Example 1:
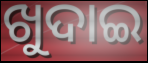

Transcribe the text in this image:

ଖୁଦାଇ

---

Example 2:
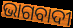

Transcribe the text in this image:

ଭାଗବାଦୀ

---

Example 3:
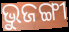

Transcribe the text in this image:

ଭୁଜଙ୍ଗୀ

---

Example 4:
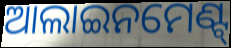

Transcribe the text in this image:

ଆଲାଇନମେଣ୍ଟ୍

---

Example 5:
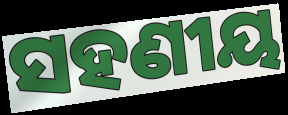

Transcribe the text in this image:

ସହଣୀୟ